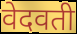
वेदवती